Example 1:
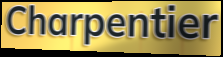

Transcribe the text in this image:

Charpentier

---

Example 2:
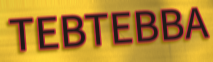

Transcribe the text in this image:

TEBTEBBA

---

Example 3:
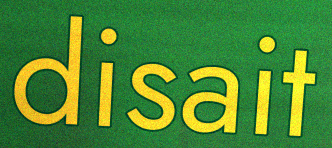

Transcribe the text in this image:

disait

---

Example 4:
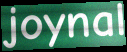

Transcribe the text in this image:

joynal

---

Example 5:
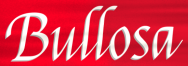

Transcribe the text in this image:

Bullosa